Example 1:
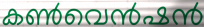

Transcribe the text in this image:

കൺവെൻഷൻ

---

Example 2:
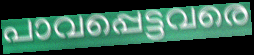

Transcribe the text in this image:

പാവപ്പെട്ടവരെ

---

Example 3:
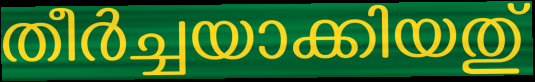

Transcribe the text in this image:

തീർച്ചയാക്കിയതു്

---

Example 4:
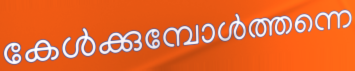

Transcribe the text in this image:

കേൾക്കുമ്പോൾത്തന്നെ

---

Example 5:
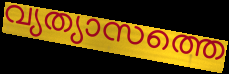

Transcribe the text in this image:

വ്യത്യാസത്തെ